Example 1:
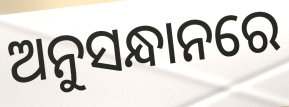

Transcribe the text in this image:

ଅନୁସନ୍ଧାନରେ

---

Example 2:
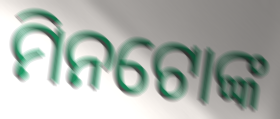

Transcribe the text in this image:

ମିନଟୋଙ୍କ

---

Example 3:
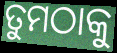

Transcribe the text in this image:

ତୁମଠାକୁ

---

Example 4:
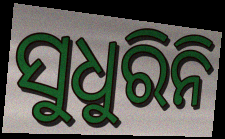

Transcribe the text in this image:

ସୁଧୁରିନି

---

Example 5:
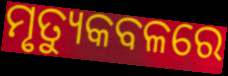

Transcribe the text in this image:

ମୃତ୍ୟୁକବଳରେ